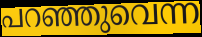
പറഞ്ഞുവെന്ന